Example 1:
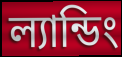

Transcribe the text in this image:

ল্যান্ডিং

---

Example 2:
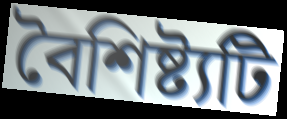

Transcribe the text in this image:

বৈশিষ্ট্যটি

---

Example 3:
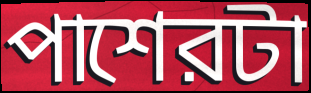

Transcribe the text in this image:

পাশেরটা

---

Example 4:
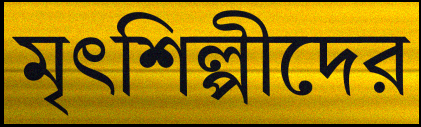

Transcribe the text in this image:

মৃৎশিল্পীদের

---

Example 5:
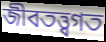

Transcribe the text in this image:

জীবতত্ত্বগত